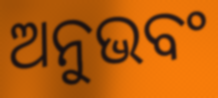
ଅନୁଭବଂ